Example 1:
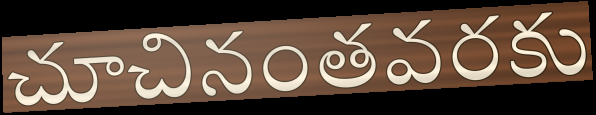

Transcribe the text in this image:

చూచినంతవరకు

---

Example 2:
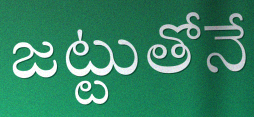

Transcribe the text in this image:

జట్టుతోనే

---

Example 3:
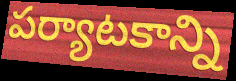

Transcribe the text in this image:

పర్యాటకాన్ని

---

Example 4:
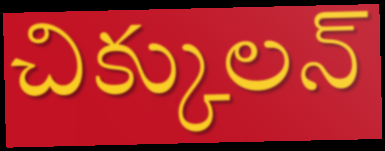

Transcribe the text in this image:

చిక్కులన్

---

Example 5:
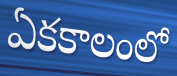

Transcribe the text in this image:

ఏకకాలంలో